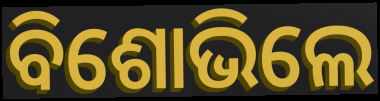
ବିଶୋଭିଲେ